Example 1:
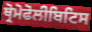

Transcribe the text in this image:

ਥ੍ਰੋਮੋਫੋਲੀਬਿਟਿਸ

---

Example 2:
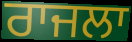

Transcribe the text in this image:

ਰਾਜਲਾ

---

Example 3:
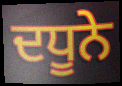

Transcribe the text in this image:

ਦਧੂਨੇ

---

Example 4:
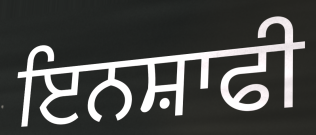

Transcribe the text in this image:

ਇਨਸ਼ਾਫੀ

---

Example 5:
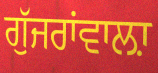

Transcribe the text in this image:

ਗੁੱਜਰਾਂਵਾਲ਼ਾ